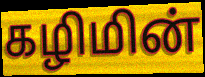
கழிமின்